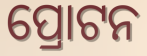
ପ୍ରୋଟନ